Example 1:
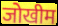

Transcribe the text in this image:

जोखीम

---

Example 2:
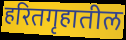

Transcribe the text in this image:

हरितगृहातील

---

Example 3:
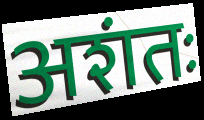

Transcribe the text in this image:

अशंतः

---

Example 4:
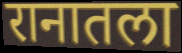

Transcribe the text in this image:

रानातला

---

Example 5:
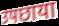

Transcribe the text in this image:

उपछाया